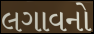
લગાવનો